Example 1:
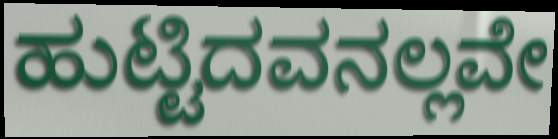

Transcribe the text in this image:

ಹುಟ್ಟಿದವನಲ್ಲವೇ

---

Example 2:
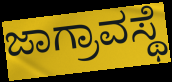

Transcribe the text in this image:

ಜಾಗ್ರಾವಸ್ಥೆ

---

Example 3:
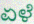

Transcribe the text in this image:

ಏಳೆ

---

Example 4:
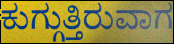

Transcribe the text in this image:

ಕುಗ್ಗುತ್ತಿರುವಾಗ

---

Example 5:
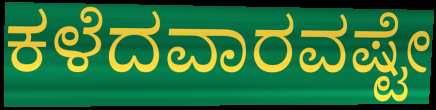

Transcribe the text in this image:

ಕಳೆದವಾರವಷ್ಟೇ